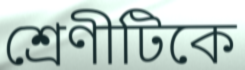
শ্রেণীটিকে